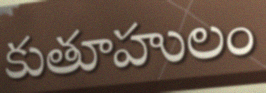
కుతూహులం